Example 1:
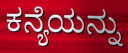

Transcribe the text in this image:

ಕನ್ಯೆಯನ್ನು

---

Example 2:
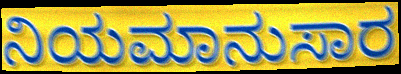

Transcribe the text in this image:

ನಿಯಮಾನುಸಾರ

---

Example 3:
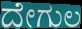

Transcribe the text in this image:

ದೇಗುಲ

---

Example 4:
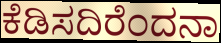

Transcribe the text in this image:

ಕೆಡಿಸದಿರೆಂದನಾ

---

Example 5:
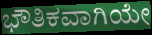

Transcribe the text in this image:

ಭೌತಿಕವಾಗಿಯೇ